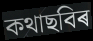
কথাছবিৰ